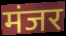
मंजर